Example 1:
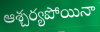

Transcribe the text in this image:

ఆశ్చర్యపోయినా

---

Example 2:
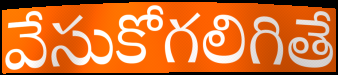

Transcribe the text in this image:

వేసుకోగలిగితే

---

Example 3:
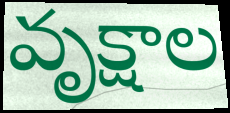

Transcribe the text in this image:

వృక్షాల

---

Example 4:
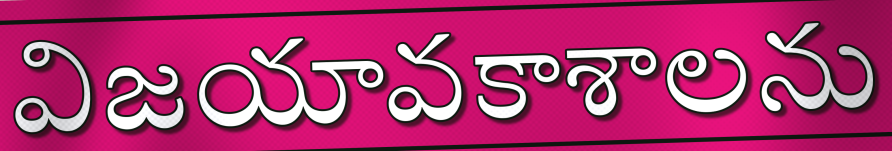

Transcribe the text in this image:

విజయావకాశాలను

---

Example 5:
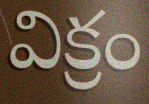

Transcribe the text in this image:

విక్రం